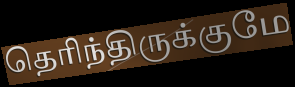
தெரிந்திருக்குமே